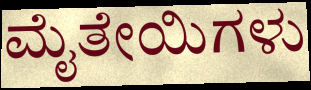
ಮೈತೇಯಿಗಳು